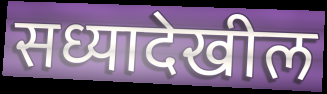
सध्यादेखील